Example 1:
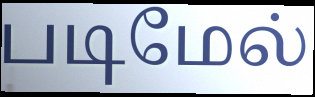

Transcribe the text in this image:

படிமேல்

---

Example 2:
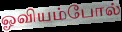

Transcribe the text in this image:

ஓவியம்போல்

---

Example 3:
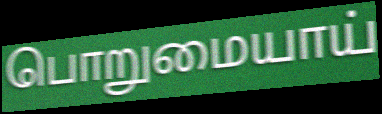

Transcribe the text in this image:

பொறுமையாய்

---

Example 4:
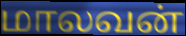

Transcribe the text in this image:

மாலவன்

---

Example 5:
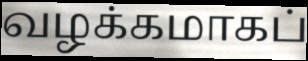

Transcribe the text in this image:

வழக்கமாகப்